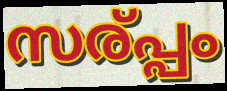
സര്പ്പം